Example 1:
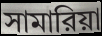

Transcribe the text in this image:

সামারিয়া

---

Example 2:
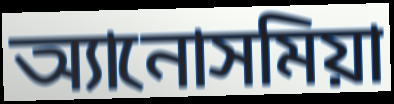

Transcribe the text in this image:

অ্যানোসমিয়া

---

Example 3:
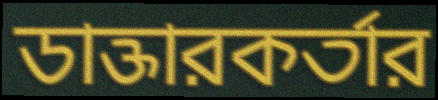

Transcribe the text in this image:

ডাক্তারকর্তার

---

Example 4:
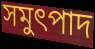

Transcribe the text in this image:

সমুৎপাদ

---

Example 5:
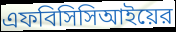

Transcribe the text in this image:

এফবিসিসিআইয়ের